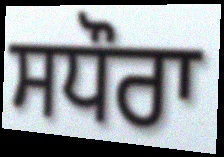
ਸਧੌਰਾ